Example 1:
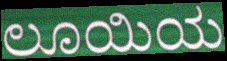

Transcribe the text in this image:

ಲೂಯಿಯ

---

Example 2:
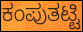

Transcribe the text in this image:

ಕಂಪುತಟ್ಟಿ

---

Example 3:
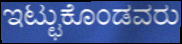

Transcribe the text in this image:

ಇಟ್ಟುಕೊಂಡವರು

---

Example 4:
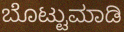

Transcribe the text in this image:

ಬೊಟ್ಟುಮಾಡಿ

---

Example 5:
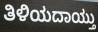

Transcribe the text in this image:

ತಿಳಿಯದಾಯ್ತು